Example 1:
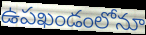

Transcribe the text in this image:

ఉపఖండంలోనూ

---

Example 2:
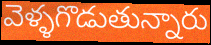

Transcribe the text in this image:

వెళ్ళగొడుతున్నారు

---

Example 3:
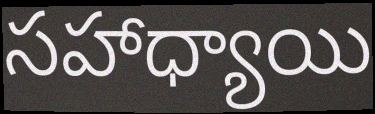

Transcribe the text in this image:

సహాధ్యాయి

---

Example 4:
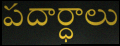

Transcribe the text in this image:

పదార్ధాలు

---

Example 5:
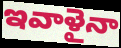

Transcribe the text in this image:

ఇవాళైనా